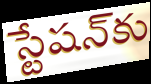
స్టేషన్‍కు